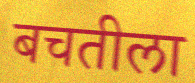
बचतीला